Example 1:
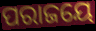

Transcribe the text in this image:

ପରାଜୟେ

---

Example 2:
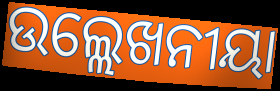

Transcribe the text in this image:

ଉଲ୍ଲେଖନୀୟା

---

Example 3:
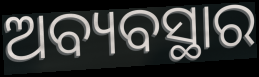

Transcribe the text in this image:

ଅବ୍ୟବସ୍ଥାର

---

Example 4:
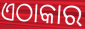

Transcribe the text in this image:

ଏଠାକାର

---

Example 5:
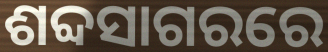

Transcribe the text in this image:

ଶବ୍ଦସାଗରରେ